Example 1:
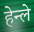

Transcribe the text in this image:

हेन्ले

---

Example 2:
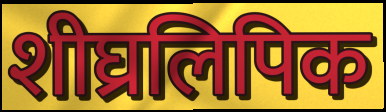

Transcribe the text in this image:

शीघ्रलिपिक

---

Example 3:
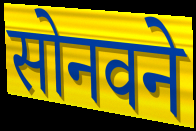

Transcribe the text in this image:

सोनवने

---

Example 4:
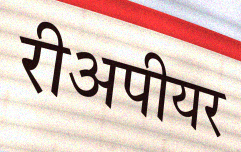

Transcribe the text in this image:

रीअपीयर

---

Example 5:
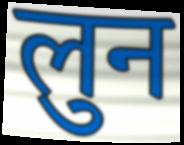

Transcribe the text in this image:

लुन